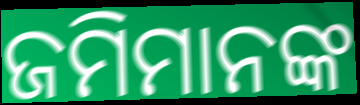
ଜମିମାନଙ୍କ